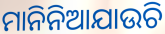
ମାନିନିଆଯାଉଚି